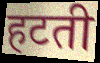
हटती